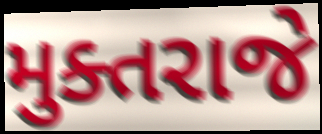
મુક્તરાજે